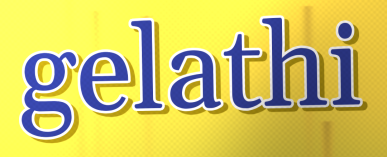
gelathi